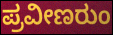
ಪ್ರವೀಣರುಂ